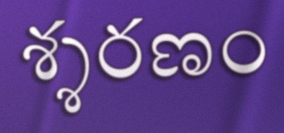
శ్శరణం